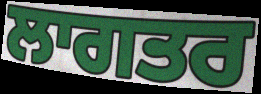
ਲਾਗਤਰ